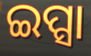
ଇପ୍ସା